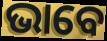
ଭାବେ